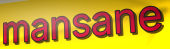
mansane